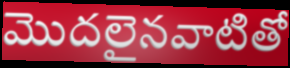
మొదలైనవాటితో